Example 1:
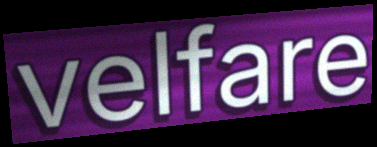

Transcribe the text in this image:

velfare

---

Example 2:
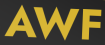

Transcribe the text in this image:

AWF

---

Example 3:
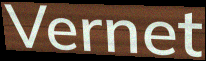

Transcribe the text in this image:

Vernet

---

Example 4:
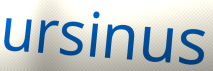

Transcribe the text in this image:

ursinus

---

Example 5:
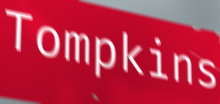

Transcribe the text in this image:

Tompkins